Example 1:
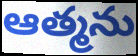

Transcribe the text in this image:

ఆత్మను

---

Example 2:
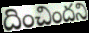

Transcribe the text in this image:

దించిందని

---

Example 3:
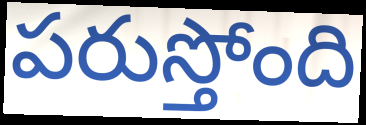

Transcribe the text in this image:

పరుస్తోంది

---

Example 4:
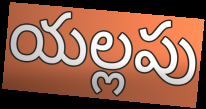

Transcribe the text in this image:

యల్లపు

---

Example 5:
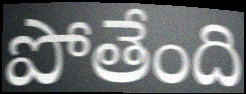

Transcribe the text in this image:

పోతేంది